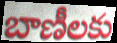
బాణీలకు